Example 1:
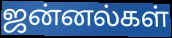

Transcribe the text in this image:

ஜன்னல்கள்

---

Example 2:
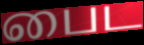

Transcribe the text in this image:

பைட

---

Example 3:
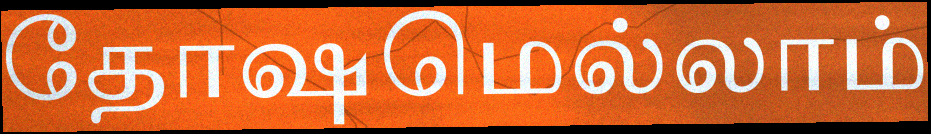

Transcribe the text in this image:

தோஷமெல்லாம்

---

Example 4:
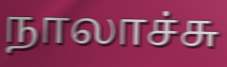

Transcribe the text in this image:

நாலாச்சு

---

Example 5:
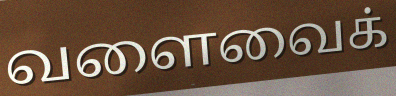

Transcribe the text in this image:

வளைவைக்